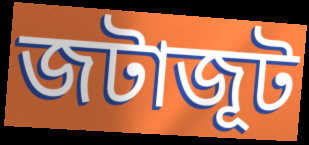
জটাজূট